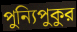
পুন্যিপুকুর